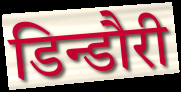
डिन्डौरी